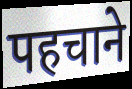
पहचाने